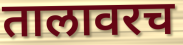
तालावरच